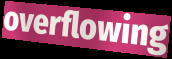
overflowing